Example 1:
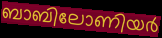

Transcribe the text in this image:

ബാബിലോണിയർ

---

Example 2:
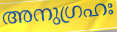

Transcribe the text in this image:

അനുഗ്രഹഃ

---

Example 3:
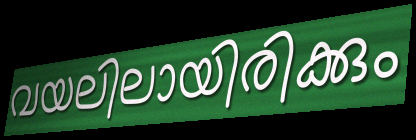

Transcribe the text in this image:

വയലിലായിരിക്കും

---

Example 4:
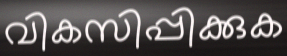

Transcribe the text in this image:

വികസിപ്പിക്കുക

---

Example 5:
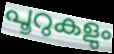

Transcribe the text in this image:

പൂറുകളും